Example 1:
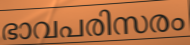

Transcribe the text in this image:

ഭാവപരിസരം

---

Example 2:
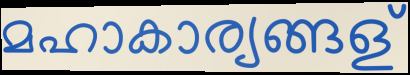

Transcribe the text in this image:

മഹാകാര്യങ്ങള്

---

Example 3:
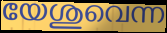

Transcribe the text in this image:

യേശുവെന്ന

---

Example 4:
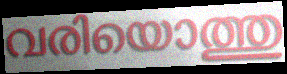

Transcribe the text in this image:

വരിയൊത്തു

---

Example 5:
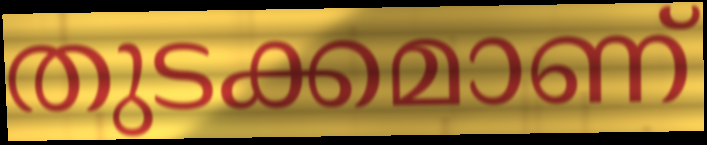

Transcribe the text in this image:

തുടക്കമാണ്